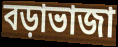
বড়াভাজা